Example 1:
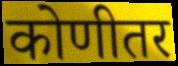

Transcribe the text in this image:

कोणीतर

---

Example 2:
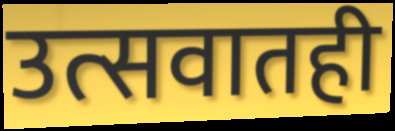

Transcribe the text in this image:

उत्सवातही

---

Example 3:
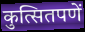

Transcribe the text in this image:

कुत्सितपणें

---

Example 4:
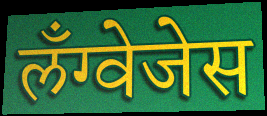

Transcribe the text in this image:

लँग्वेजेस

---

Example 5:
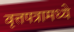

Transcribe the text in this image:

वृत्तपत्रामध्ये